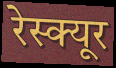
रेस्क्यूर